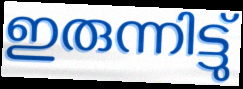
ഇരുന്നിട്ടു്